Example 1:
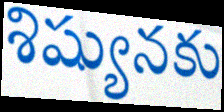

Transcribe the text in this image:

శిష్యునకు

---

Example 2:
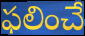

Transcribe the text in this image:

ఫలించే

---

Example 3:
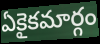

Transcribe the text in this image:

ఏకైకమార్గం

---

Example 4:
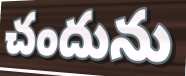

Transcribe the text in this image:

చందును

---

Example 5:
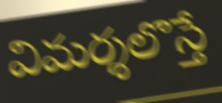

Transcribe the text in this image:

విమర్శలొస్తే